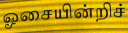
ஓசையின்றிச்